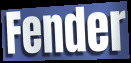
Fender